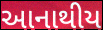
આનાથીય